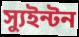
স্যুইন্টন